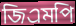
জিএমপি